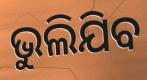
ଭୁଲିଯିବ